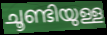
ചൂണ്ടിയുള്ള